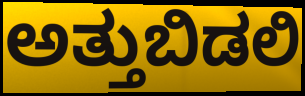
ಅತ್ತುಬಿಡಲಿ